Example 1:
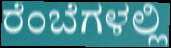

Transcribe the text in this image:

ರೆಂಬೆಗಳಲ್ಲಿ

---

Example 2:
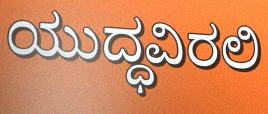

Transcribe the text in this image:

ಯುದ್ಧವಿರಲಿ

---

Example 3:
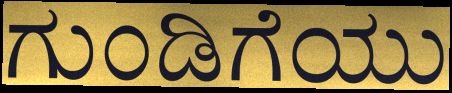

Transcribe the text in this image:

ಗುಂಡಿಗೆಯು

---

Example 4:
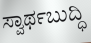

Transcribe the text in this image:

ಸ್ವಾರ್ಥಬುದ್ಧಿ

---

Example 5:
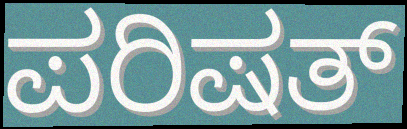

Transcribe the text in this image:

ಪರಿಷತ್